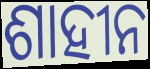
ଶାହୀନ